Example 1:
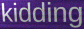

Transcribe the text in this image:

kidding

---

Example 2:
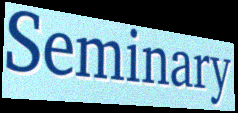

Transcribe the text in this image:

Seminary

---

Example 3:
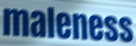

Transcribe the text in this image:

maleness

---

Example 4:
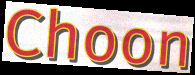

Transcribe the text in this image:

Choon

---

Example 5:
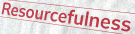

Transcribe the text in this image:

Resourcefulness